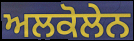
ਅਲਕੋਲੇਨ